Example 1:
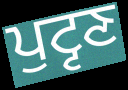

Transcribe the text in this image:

ਪੁਟ੍ਟਣ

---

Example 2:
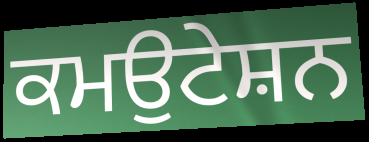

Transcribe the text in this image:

ਕਮਉਟੇਸ਼ਨ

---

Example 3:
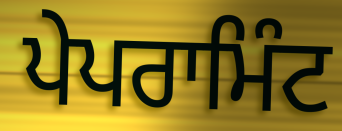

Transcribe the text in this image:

ਪੇਪਰਾਮਿੰਟ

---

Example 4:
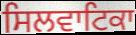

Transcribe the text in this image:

ਸਿਲਵਾਟਿਕਾ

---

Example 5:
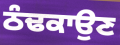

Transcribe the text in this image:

ਠੰਢਕਾਉਣ